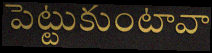
పెట్టుకుంటావా